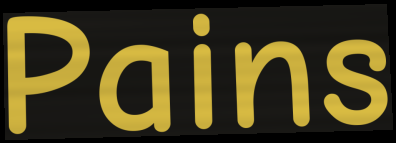
Pains